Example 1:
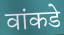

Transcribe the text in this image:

वांकडे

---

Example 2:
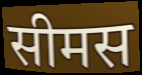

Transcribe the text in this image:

सीमस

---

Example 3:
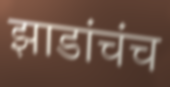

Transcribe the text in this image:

झाडांचंच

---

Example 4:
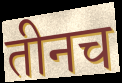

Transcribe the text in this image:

तीनच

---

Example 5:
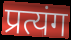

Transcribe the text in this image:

प्रत्यंग